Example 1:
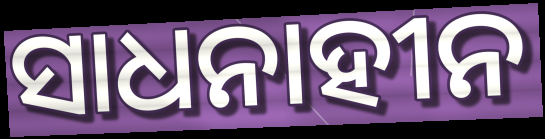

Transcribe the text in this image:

ସାଧନାହୀନ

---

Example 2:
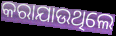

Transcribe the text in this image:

କରାଯାଉଥିଲେ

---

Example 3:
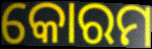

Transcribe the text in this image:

କୋରମ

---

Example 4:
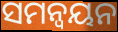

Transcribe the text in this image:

ସମନ୍ୱୟନ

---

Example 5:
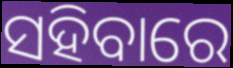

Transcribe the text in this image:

ସହିବାରେ